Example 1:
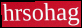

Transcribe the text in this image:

hrsohag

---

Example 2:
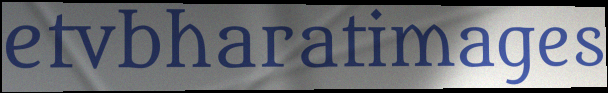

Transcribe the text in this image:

etvbharatimages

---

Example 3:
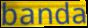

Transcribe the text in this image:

banda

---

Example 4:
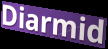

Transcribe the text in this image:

Diarmid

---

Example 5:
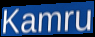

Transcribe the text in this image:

Kamru